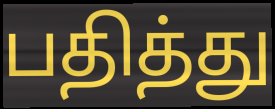
பதித்து